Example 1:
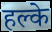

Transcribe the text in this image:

हल्के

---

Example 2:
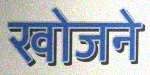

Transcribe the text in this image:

खोजने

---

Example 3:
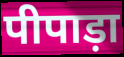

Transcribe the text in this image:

पीपाड़ा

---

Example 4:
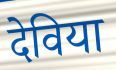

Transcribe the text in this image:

देविया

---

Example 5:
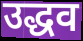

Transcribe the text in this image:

उद्धव